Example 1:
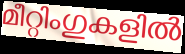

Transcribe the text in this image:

മീറ്റിംഗുകളിൽ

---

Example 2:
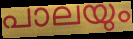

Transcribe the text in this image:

പാലയും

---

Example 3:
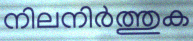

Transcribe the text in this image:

നിലനിർത്തുക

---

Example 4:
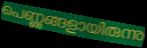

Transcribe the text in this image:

പെണ്ണുങ്ങളായിരുന്നു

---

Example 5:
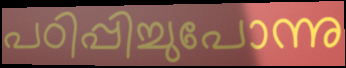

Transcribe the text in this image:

പഠിപ്പിച്ചുപോന്നു